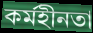
কর্মহীনতা